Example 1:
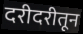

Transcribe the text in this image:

दरीदरीतून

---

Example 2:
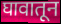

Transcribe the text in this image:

घावातून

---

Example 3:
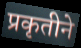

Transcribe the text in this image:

प्रकृतीने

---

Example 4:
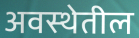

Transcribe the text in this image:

अवस्थेतील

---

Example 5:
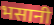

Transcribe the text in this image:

भसानी